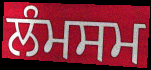
ਲੰਮਸਮ